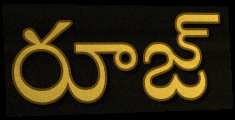
రూజ్